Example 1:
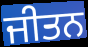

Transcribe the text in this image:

ਜੀਤਨ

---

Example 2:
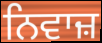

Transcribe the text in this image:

ਨਿਵਾਜ਼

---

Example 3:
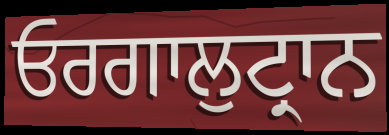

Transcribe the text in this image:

ਓਰਗਾਲੁਟ੍ਰਾਨ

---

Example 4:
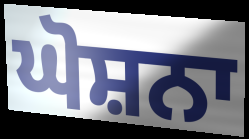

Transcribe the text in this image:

ਘੋਸ਼ਨਾ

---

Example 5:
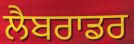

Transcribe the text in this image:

ਲੈਬਰਾਡਰ